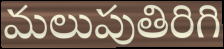
మలుపుతిరిగి